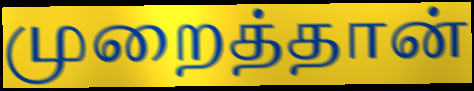
முறைத்தான்